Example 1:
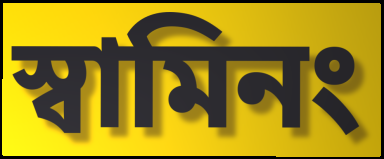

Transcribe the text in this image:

স্বামিনং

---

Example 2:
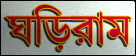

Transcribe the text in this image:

ঘড়িরাম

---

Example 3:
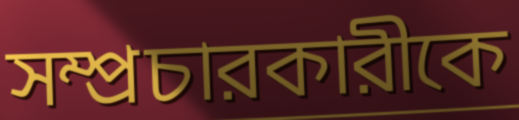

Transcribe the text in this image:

সম্প্রচারকারীকে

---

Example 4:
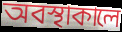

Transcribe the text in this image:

অবস্থাকালে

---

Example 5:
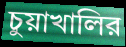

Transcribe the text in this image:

চুয়াখালির